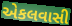
એકલવાસી